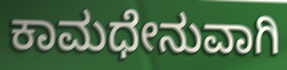
ಕಾಮಧೇನುವಾಗಿ